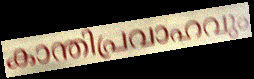
കാന്തിപ്രവാഹവും